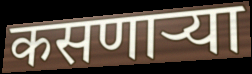
कसणाऱ्या